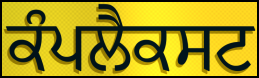
ਕੰਪਲੈਕਸਟ